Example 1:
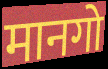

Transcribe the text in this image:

मानगो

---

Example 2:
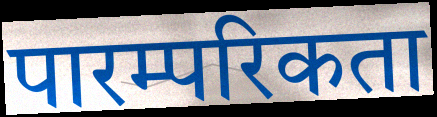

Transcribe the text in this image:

पारम्परिकता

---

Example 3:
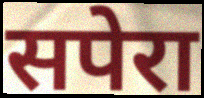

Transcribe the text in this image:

सपेरा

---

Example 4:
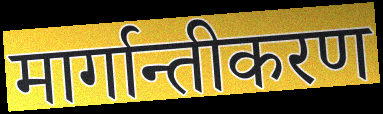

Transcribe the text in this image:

मार्गान्तीकरण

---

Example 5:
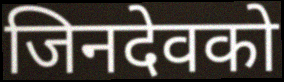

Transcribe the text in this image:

जिनदेवको